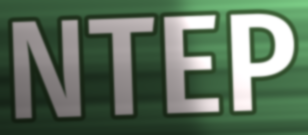
NTEP